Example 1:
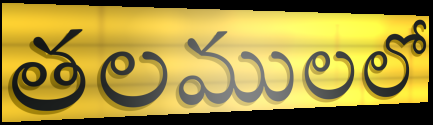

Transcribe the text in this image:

తలములలో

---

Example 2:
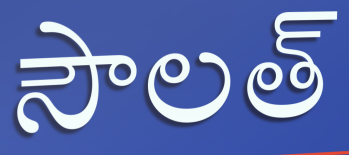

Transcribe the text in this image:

సౌలత్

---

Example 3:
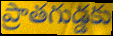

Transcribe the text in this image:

ప్రాతగుడ్డకు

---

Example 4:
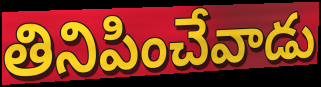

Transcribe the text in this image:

తినిపించేవాడు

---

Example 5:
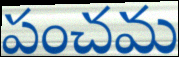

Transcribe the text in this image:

పంచమ